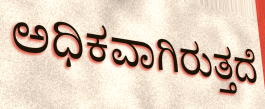
ಅಧಿಕವಾಗಿರುತ್ತದೆ